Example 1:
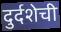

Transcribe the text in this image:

दुर्दशेची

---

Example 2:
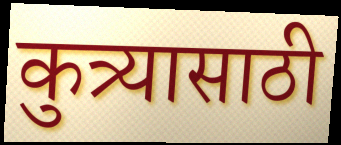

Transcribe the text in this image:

कुत्र्यासाठी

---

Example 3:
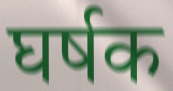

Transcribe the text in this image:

घर्षक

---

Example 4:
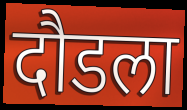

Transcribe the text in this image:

दौडला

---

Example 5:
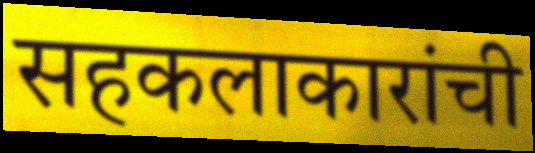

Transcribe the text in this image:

सहकलाकारांची